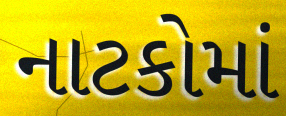
નાટકોમાં